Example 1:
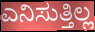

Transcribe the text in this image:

ಎನಿಸುತ್ತಿಲ್ಲ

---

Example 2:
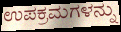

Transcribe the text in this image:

ಉಪಕ್ರಮಗಳನ್ನು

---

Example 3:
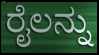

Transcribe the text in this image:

ರೈಲನ್ನು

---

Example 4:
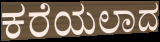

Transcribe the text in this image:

ಕರೆಯಲಾದ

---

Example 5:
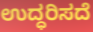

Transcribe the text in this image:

ಉದ್ಧರಿಸದೆ